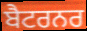
ਬੈਟਰਨਰ